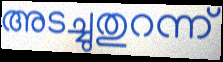
അടച്ചുതുറന്ന്